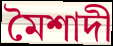
মৈশাদী